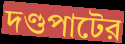
দণ্ডপাটের